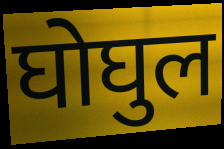
घोघुल